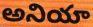
అనియా